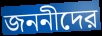
জননীদের